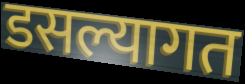
डसल्यागत